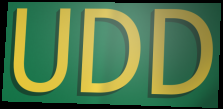
UDD